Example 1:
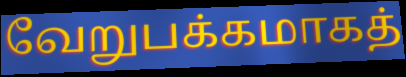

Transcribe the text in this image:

வேறுபக்கமாகத்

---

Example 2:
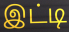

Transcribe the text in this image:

இட்டி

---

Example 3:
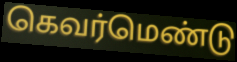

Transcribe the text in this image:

கெவர்மெண்டு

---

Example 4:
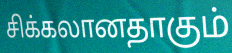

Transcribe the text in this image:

சிக்கலானதாகும்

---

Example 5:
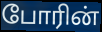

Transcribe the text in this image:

போரின்